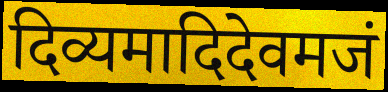
दिव्यमादिदेवमजं